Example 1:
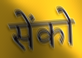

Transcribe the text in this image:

सेंको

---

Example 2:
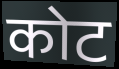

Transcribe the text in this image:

कोट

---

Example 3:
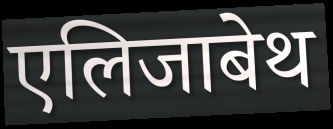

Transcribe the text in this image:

एलिजाबेथ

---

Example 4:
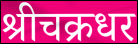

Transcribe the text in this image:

श्रीचक्रधर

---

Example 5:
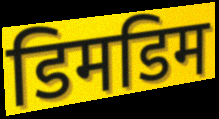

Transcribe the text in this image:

डिमडिम